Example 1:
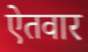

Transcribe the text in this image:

ऐतवार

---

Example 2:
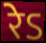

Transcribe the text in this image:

रेऽ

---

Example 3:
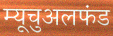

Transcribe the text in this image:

म्यूचुअलफंड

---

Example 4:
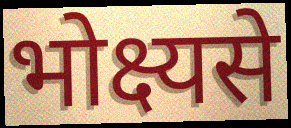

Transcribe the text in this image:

भोक्ष्यसे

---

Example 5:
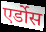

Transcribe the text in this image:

एर्डोस